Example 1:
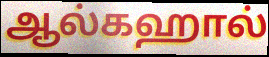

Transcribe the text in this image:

ஆல்கஹால்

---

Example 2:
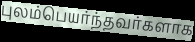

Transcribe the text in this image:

புலம்பெயர்ந்தவர்களாக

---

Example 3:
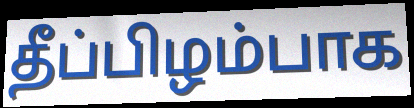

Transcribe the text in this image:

தீப்பிழம்பாக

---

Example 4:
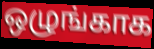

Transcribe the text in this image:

ஒழுங்காக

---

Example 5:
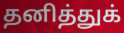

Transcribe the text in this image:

தனித்துக்